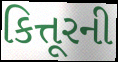
કિત્તૂરની